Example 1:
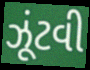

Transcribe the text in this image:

ઝૂંટવી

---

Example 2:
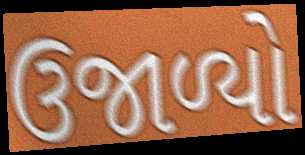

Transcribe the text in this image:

ઉજાળ્યો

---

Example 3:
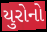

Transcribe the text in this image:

યુરોનો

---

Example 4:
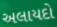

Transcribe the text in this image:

અલાયદો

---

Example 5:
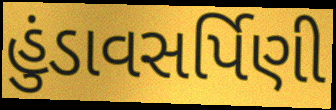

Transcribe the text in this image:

હુંડાવસર્પિણી